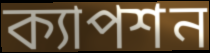
ক্যাপশন